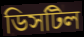
ডিসটিল